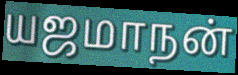
யஜமாநன்